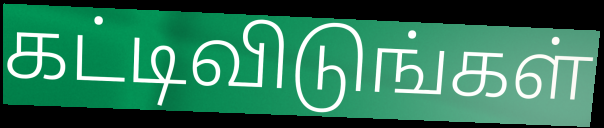
கட்டிவிடுங்கள்